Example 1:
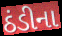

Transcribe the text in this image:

ઠંડીના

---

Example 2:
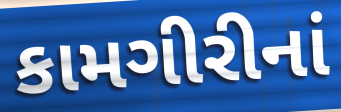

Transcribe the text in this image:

કામગીરીનાં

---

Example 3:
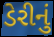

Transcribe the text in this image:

ડેરીનું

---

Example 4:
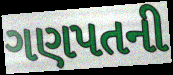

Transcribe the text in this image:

ગણપતની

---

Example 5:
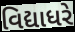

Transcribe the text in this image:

વિદ્યાધરે